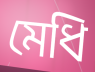
মেধি